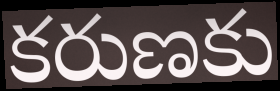
కరుణకు